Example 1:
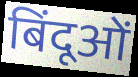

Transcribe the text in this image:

बिंदूओं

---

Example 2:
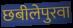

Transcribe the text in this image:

छबीलेपुरवा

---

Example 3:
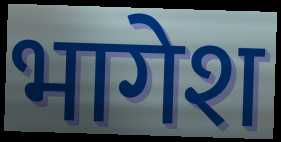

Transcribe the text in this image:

भागेश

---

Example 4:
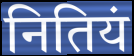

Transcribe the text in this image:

नितियं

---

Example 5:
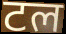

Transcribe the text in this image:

टल